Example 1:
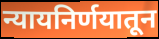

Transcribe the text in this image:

न्यायनिर्णयातून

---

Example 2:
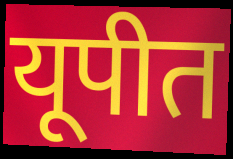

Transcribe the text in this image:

यूपीत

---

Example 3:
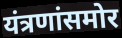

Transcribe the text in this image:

यंत्रणांसमोर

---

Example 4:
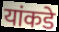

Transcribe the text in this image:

यांकडे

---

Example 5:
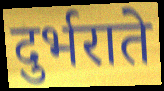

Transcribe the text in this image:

दुर्भराते